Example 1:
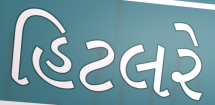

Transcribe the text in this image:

હિટલરે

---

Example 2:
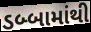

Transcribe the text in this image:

ડબ્બામાંથી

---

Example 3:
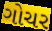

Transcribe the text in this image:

ગોચર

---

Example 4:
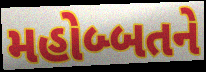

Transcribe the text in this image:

મહોબ્બતને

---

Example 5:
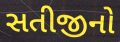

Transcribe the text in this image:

સતીજીનો